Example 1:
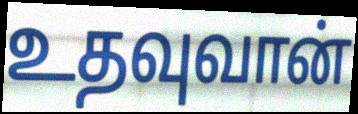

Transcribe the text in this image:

உதவுவான்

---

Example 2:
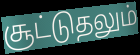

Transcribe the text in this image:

சூட்டுதலும்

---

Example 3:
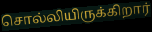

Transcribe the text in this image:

சொல்லியிருக்கிறார்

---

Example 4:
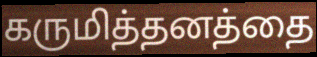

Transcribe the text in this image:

கருமித்தனத்தை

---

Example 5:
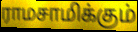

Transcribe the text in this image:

ராமசாமிக்கும்